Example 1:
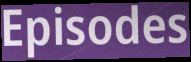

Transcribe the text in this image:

Episodes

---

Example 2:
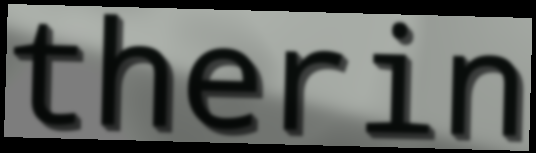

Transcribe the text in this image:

therin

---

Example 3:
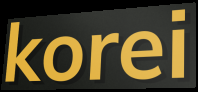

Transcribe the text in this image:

korei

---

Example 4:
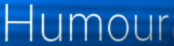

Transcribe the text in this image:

Humour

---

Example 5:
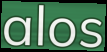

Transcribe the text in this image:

alos